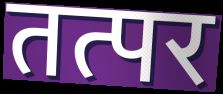
तत्पर